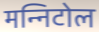
मन्निटोल